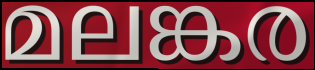
മലങ്കര